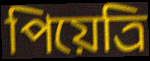
পিয়েত্রি